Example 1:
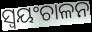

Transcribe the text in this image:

ସ୍ବୟଂଚାଳନ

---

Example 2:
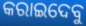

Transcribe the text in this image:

କରାଇଦେବୁ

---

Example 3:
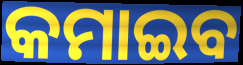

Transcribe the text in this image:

କମାଇବ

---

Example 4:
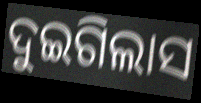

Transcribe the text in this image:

ଦୁଇଗିଲାସ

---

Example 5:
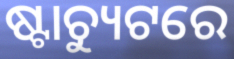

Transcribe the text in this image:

ଷ୍ଟାଚ୍ୟୁଟରେ